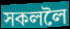
সকললৈ